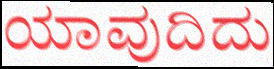
ಯಾವುದಿದು